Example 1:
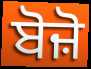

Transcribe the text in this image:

ਬੋਜ਼ੋ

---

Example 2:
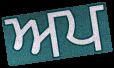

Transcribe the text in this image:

ਅਪ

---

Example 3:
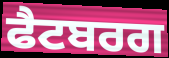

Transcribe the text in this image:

ਫੈਟਬਰਗ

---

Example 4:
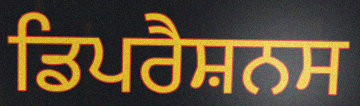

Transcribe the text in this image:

ਡਿਪਰੈਸ਼ਨਸ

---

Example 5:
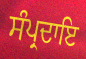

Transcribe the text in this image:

ਸੰਪ੍ਰਦਾਇ